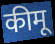
कीमू